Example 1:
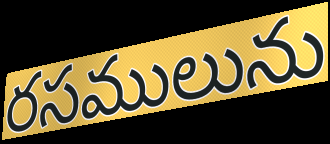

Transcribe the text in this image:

రసములును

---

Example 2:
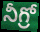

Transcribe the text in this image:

నీగ్రో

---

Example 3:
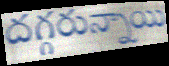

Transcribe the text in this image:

దగ్గరున్నాయి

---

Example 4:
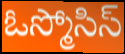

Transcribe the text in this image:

ఓస్మోసిస్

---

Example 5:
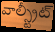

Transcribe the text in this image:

వాల్స్ట్రీట్